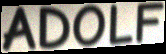
ADOLF